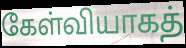
கேள்வியாகத்